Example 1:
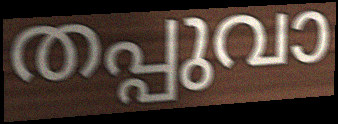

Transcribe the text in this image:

തപ്പുവാ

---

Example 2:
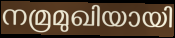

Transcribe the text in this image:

നമ്രമുഖിയായി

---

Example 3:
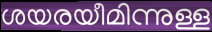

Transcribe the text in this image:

ശയരയീമിന്നുള്ള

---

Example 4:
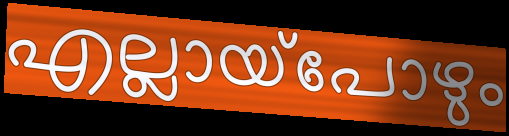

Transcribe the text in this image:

എല്ലായ്‌പോഴും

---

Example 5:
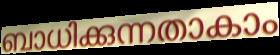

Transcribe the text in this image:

ബാധിക്കുന്നതാകാം